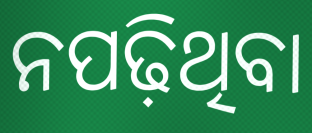
ନପଢ଼ିଥିବା